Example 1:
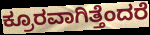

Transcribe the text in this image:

ಕ್ರೂರವಾಗಿತ್ತೆಂದರೆ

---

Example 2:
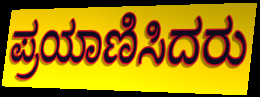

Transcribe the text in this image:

ಪ್ರಯಾಣಿಸಿದರು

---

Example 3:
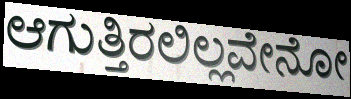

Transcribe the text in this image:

ಆಗುತ್ತಿರಲಿಲ್ಲವೇನೋ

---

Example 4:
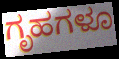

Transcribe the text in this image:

ಗೃಹಗಳೂ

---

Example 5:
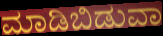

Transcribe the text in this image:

ಮಾಡಿಬಿಡುವಾ